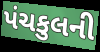
પંચકુલની